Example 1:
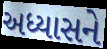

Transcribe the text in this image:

અધ્યાસને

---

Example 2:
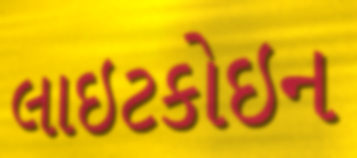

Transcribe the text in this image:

લાઇટકોઇન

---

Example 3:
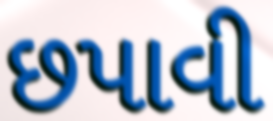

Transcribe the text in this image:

છપાવી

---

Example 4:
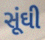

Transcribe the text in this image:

સૂંઘી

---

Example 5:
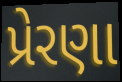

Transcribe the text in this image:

પ્રેરણા